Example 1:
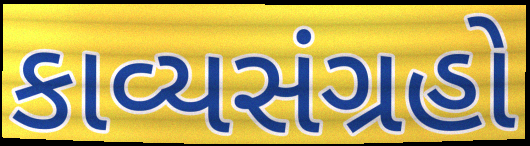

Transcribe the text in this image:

કાવ્યસંગ્રહો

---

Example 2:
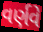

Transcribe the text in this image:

વર્ણવે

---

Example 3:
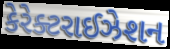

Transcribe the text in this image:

કેરેક્ટરાઈઝેશન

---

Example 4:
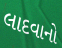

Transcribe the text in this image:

લાદવાનો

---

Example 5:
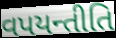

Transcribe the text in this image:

વપયન્તીતિ